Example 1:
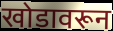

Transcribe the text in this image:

खोडावरून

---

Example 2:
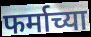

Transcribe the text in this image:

फर्माच्या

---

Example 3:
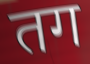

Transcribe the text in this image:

तग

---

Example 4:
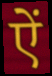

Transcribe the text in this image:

ऐं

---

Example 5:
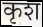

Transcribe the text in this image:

कृश